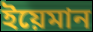
ইয়েমান